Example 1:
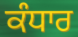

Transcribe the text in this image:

ਕੰਧਾਰ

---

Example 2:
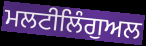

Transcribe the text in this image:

ਮਲਟੀਲਿੰਗੁਅਲ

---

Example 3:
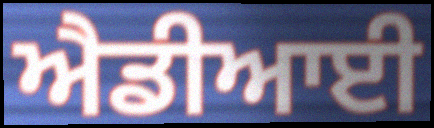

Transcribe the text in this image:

ਐਡੀਆਈ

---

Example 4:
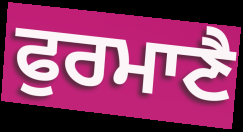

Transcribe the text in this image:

ਫੁਰਮਾਣੈ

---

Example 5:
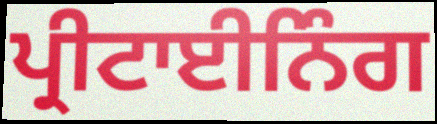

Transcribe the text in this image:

ਪ੍ਰੀਟਾਈਨਿੰਗ